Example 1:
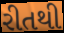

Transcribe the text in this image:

રીતથી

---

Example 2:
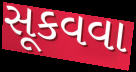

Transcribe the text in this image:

સૂકવવા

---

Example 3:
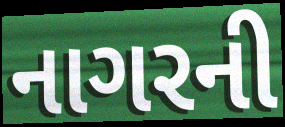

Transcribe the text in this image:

નાગરની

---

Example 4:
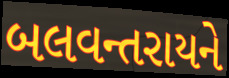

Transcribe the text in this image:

બલવન્તરાયને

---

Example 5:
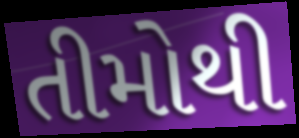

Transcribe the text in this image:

તીમોથી